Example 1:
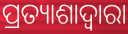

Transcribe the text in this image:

ପ୍ରତ୍ୟାଶାଦ୍ୱାରା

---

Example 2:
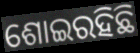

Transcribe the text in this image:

ଶୋଇରହିଛି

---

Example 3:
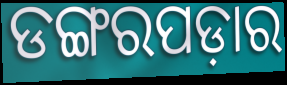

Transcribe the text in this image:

ଡଙ୍ଗରପଡ଼ାର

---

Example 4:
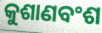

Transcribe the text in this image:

କୁଶାଣବଂଶ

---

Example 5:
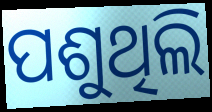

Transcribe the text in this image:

ପଶୁଥିଲି